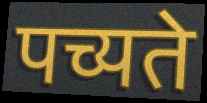
पच्यते